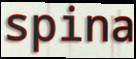
spina